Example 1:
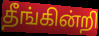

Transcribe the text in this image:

தீங்கின்றி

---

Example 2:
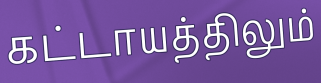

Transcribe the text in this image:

கட்டாயத்திலும்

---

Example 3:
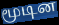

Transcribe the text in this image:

மூடின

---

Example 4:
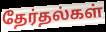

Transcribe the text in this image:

தேர்தல்கள்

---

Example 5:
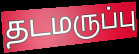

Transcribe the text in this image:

தடமருப்பு